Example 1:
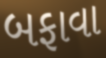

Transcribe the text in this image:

બફાવા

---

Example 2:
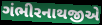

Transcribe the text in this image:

ગંભીરનાથજીએ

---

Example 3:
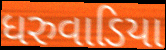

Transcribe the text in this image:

ધરુવાડિયા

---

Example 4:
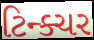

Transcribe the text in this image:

ટિન્ક્ચર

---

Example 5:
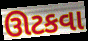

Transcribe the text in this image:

ઊટકવા